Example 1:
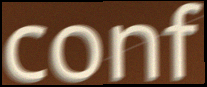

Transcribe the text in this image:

conf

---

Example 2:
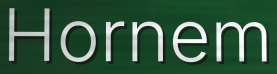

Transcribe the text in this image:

Hornem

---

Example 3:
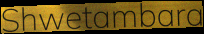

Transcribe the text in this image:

Shwetambara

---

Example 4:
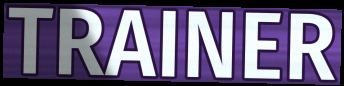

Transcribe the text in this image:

TRAINER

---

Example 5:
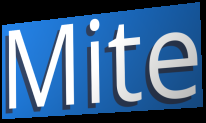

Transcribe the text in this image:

Mite